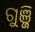
ଗୁଞ୍ଜି